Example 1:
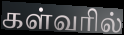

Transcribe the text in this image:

கள்வரில்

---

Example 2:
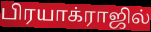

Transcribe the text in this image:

பிரயாக்ராஜில்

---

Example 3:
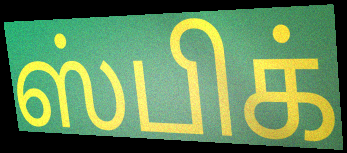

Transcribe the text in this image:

ஸ்பிக்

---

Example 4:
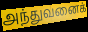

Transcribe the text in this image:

அந்துவனைக்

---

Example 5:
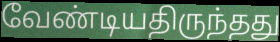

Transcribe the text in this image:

வேண்டியதிருந்தது